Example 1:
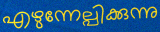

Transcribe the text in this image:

എഴുന്നേല്പിക്കുന്നു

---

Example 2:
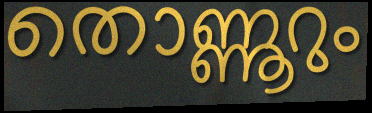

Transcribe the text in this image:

തൊണ്ണൂറും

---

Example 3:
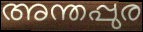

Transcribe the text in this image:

അന്തപ്പുര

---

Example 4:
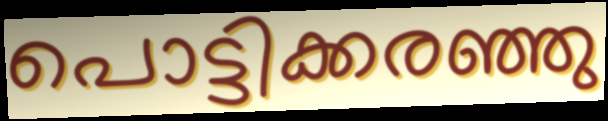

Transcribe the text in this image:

പൊട്ടിക്കരഞ്ഞു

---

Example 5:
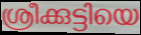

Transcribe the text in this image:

ശ്രീക്കുട്ടിയെ